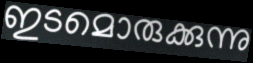
ഇടമൊരുക്കുന്നു